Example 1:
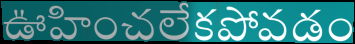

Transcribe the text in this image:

ఊహించలేకపోవడం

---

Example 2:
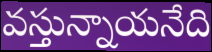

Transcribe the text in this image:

వస్తున్నాయనేది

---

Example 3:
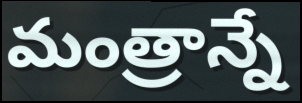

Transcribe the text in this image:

మంత్రాన్నే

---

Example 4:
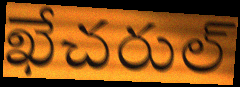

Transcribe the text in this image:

ఖేచరుల్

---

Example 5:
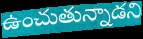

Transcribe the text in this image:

ఉంచుతున్నాడని